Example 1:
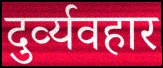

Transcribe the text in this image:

दुर्व्‍यवहार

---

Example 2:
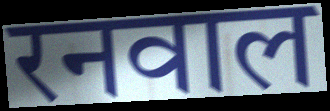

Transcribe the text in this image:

रनवाल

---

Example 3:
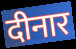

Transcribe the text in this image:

दीनार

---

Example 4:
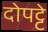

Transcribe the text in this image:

दोपट्टे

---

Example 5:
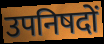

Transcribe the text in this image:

उपनिषदों